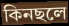
কিনছলে